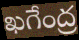
ఖగేంద్ర